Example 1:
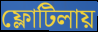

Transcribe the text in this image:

ফ্লোটিলায়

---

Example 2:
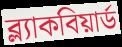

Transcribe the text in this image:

ব্ল্যাকবিয়ার্ড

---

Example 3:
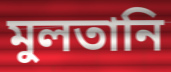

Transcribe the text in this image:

মুলতানি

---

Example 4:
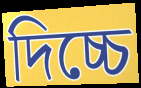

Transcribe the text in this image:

দিচ্চে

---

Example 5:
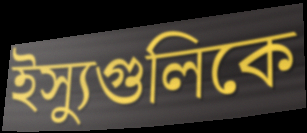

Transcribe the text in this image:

ইস্যুগুলিকে